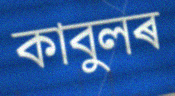
কাবুলৰ